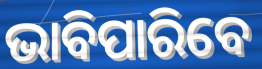
ଭାବିପାରିବେ